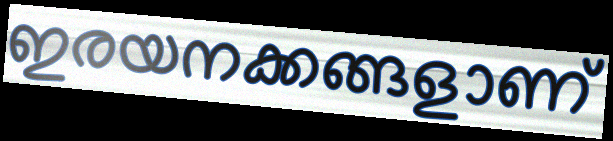
ഇരയനക്കങ്ങളാണ്